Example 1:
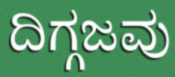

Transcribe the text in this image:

ದಿಗ್ಗಜವು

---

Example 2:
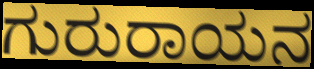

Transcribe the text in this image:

ಗುರುರಾಯನ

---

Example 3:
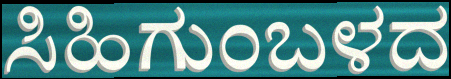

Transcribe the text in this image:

ಸಿಹಿಗುಂಬಳದ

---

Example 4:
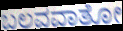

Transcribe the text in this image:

ಬಲವವಾತೋ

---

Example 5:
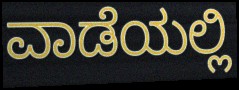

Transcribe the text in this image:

ವಾಡೆಯಲ್ಲಿ